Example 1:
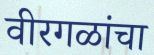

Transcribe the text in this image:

वीरगळांचा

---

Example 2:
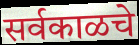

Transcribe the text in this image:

सर्वकाळचे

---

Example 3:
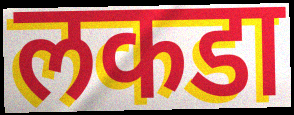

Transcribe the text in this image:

लकडा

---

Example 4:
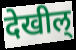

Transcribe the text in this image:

देखील्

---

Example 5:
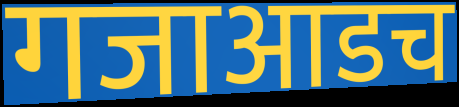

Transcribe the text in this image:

गजाआडच